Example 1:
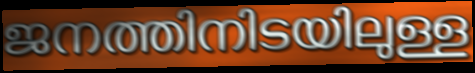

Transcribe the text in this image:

ജനത്തിനിടയിലുള്ള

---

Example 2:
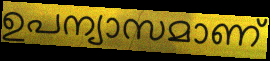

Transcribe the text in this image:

ഉപന്യാസമാണ്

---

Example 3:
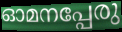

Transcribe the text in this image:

ഓമനപ്പേരു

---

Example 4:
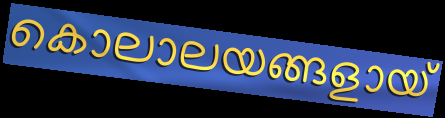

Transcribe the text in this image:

കൊലാലയങ്ങളായ്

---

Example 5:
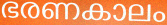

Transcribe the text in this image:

ഭരണകാലം